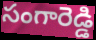
సంగారెడ్డి